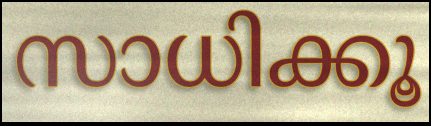
സാധിക്കൂ